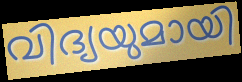
വിദ്യയുമായി